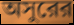
অসুরের